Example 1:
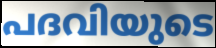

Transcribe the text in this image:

പദവിയുടെ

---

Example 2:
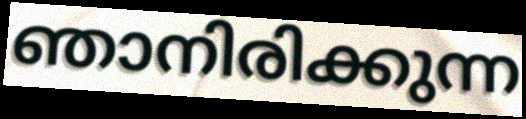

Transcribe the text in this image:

ഞാനിരിക്കുന്ന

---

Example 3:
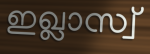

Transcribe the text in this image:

ഇഖ്ലാസ്വ്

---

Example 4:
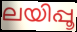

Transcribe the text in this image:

ലയിപ്പൂ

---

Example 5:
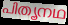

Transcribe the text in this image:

പിതൄനഥ